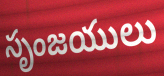
సృంజయులు